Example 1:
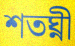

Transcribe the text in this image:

শতঘ্নী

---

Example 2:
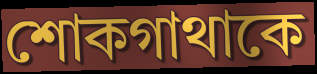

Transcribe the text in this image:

শোকগাথাকে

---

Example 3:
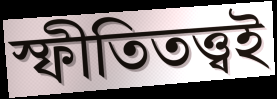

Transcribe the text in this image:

স্ফীতিতত্ত্বই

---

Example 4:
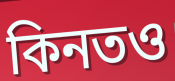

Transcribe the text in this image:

কিনতও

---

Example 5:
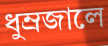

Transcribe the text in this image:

ধুম্রজালে